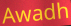
Awadh